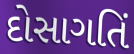
દોસાગતિં